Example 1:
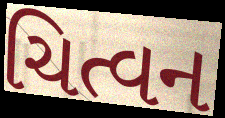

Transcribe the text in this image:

ચિત્વન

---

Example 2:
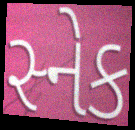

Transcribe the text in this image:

સ્નેક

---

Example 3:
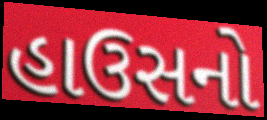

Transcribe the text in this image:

હાઉસનો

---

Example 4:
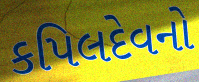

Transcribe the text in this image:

કપિલદેવનો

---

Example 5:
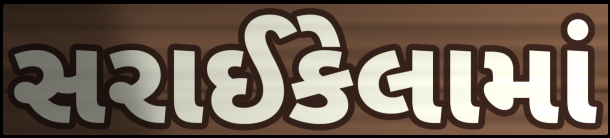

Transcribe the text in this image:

સરાઈકેલામાં